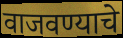
वाजवण्याचे